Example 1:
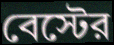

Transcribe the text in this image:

বেস্টের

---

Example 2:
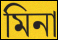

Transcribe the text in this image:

মিনা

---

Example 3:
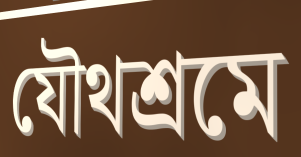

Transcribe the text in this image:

যৌথশ্রমে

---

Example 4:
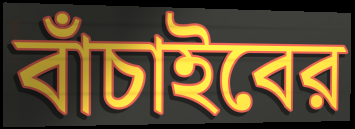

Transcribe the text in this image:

বাঁচাইবের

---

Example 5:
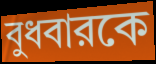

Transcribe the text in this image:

বুধবারকে